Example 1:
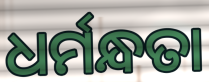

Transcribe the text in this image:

ଧର୍ମନ୍ଧତା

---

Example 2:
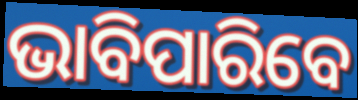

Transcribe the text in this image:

ଭାବିପାରିବେ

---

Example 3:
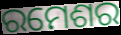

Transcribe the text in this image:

ରମେଶର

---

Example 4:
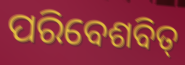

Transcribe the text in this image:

ପରିବେଶବିତ୍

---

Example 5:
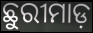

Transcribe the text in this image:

ଛୁରୀମାଡ଼